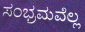
ಸಂಭ್ರಮವೆಲ್ಲ